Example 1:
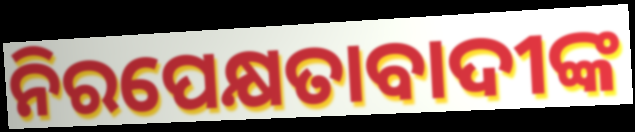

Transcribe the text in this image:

ନିରପେକ୍ଷତାବାଦୀଙ୍କ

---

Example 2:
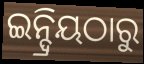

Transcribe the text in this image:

ଇନ୍ଦ୍ରିୟଠାରୁ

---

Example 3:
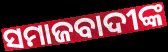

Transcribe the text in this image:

ସମାଜବାଦୀଙ୍କ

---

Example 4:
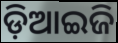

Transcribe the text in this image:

ଡ଼ିଆଇଜି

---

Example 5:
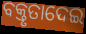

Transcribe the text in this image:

ବକ୍ତୃତାଦେଇ